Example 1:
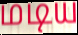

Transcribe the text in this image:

மடிய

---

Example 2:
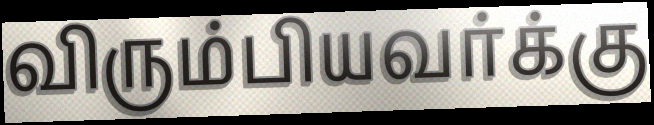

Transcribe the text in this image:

விரும்பியவர்க்கு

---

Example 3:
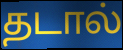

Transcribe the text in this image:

தடால்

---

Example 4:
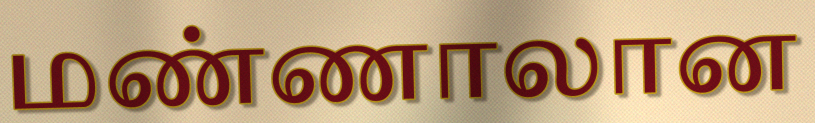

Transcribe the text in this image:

மண்ணாலான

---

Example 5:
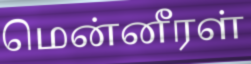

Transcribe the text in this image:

மென்னீரள்